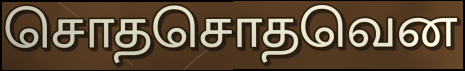
சொதசொதவென